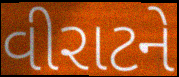
વીરાટને